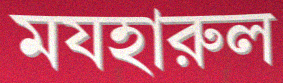
মযহারুল